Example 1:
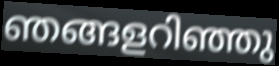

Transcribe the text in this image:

ഞങ്ങളറിഞ്ഞു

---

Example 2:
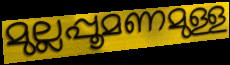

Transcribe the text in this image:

മുല്ലപ്പൂമണമുള്ള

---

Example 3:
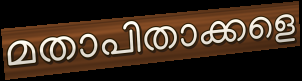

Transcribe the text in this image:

മതാപിതാക്കളെ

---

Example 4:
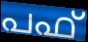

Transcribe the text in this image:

പഫ്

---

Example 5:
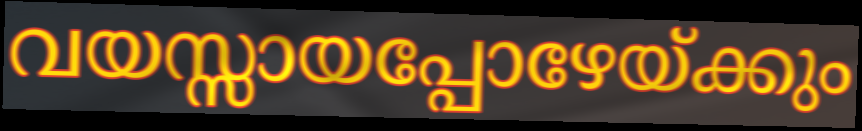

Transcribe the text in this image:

വയസ്സായപ്പോഴേയ്ക്കും